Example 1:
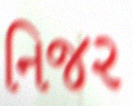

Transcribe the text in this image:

નિજર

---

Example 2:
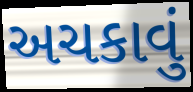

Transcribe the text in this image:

અચકાવું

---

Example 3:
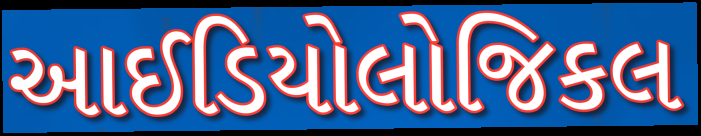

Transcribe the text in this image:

આઈડિયોલોજિકલ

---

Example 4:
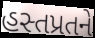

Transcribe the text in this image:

હસ્તપ્રતને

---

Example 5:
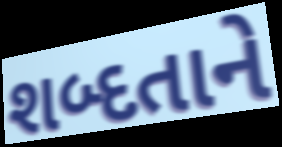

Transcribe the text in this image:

શબ્દતાને